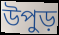
উপুড়